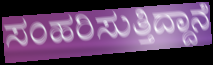
ಸಂಹರಿಸುತ್ತಿದ್ದಾನೆ